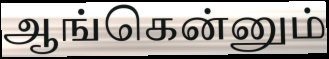
ஆங்கென்னும்